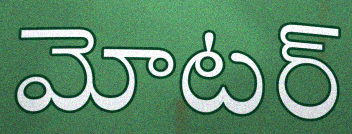
మోటర్